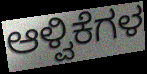
ಆಳ್ವಿಕೆಗಳ